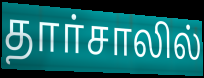
தார்சாலில்